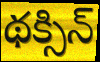
థక్సిన్